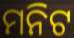
ମନିଟ